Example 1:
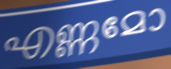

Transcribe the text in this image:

എണ്ണമോ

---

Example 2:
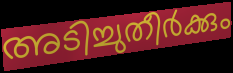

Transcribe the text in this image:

അടിച്ചുതീർക്കും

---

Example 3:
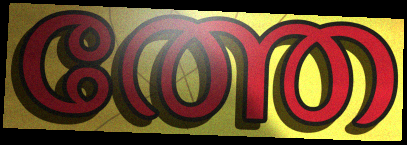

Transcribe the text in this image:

ത്തേ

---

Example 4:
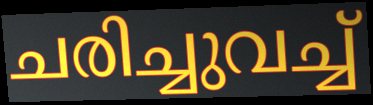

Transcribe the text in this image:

ചരിച്ചുവച്ച്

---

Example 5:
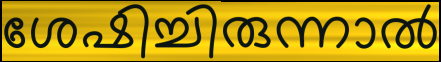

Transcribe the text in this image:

ശേഷിച്ചിരുന്നാൽ